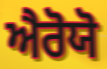
ਐਰੋਯੋ